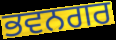
ਭਵਨਗਰ